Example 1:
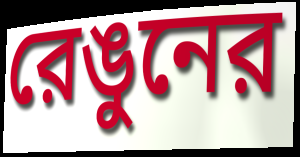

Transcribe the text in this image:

রেঙুনের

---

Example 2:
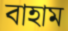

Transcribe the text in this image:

বাহাম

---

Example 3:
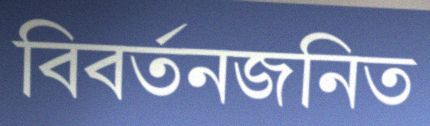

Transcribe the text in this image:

বিবর্তনজনিত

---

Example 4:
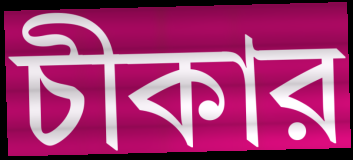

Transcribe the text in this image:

চীকার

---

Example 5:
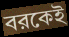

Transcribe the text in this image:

বরকেই